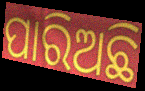
ପାରିଅଛି